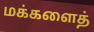
மக்களைத்